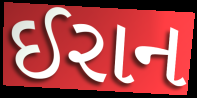
ઈરાન